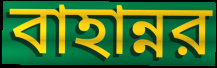
বাহান্নর